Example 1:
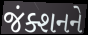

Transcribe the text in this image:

જંક્શનને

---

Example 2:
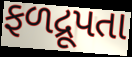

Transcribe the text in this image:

ફળદ્રૂપતા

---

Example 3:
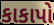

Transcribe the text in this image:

કાકાપો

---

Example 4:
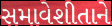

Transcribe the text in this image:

સમાવેશીતાને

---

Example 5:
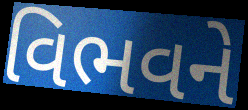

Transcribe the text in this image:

વિભવને